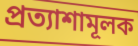
প্রত্যাশামূলক